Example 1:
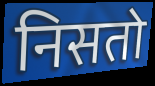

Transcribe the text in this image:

निसतो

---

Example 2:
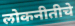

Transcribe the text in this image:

लोकनीतीचे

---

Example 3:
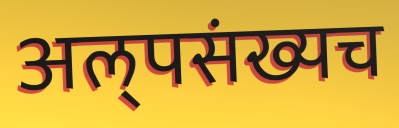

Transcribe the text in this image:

अल्पसंख्यच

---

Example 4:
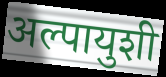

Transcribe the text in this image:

अल्पायुशी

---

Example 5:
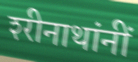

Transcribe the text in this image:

श्रीनाथांनीं